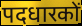
पदधारकों